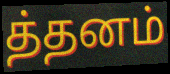
த்தனம்